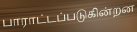
பாராட்டப்படுகின்றன